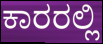
ಕಾರರಲ್ಲಿ